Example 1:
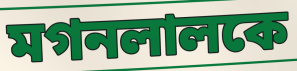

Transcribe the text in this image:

মগনলালকে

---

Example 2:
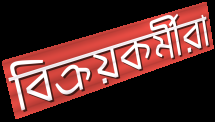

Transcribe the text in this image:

বিক্রয়কর্মীরা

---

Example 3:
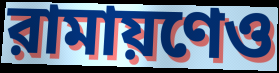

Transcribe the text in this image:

রামায়ণেও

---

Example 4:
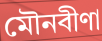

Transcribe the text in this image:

মৌনবীণা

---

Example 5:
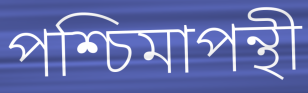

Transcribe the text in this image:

পশ্চিমাপন্থী